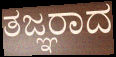
ತಜ್ಞರಾದ